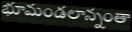
భూమండలాన్నంతా